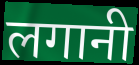
लगानी